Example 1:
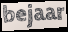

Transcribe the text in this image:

bejaar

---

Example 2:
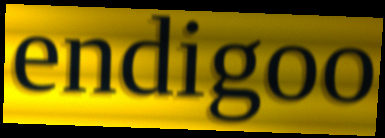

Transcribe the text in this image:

endigoo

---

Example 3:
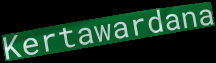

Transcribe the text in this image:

Kertawardana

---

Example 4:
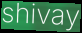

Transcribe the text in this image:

shivay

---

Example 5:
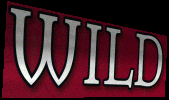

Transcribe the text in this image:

WILD